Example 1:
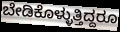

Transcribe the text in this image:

ಬೇಡಿಕೊಳ್ಳುತ್ತಿದ್ದರೂ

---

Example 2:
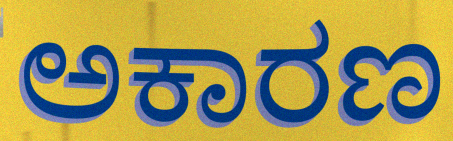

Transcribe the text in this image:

ಅಕಾರಣ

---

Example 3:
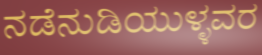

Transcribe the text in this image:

ನಡೆನುಡಿಯುಳ್ಳವರ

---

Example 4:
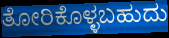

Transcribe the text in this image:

ತೋರಿಕೊಳ್ಳಬಹುದು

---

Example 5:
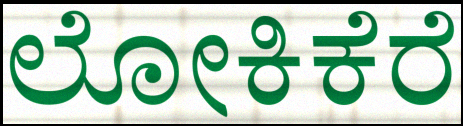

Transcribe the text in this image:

ಲೋಕಿಕೆರೆ